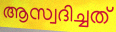
ആസ്വദിച്ചത്